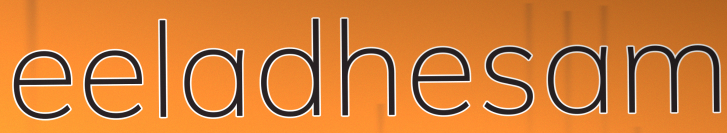
eeladhesam